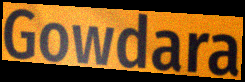
Gowdara